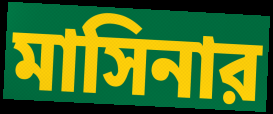
মাসিনার